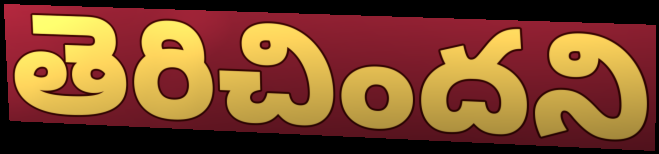
తెరిచిందని